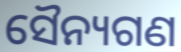
ସୈନ୍ୟଗଣ